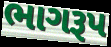
ભાગરૂપ